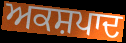
ਅਕਸ਼ਪਾਦ